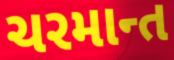
ચરમાન્ત